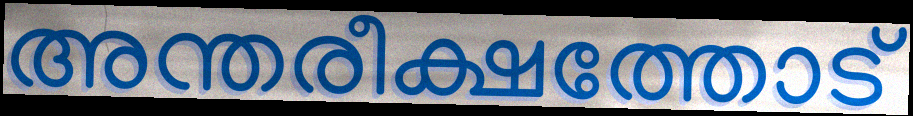
അന്തരീക്ഷത്തോട്